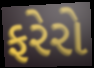
ફરેરો